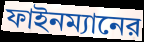
ফাইনম্যানের